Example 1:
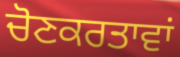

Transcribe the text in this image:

ਚੋਣਕਰਤਾਵਾਂ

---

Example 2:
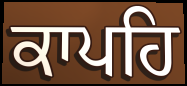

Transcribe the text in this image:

ਕਾਪਹਿ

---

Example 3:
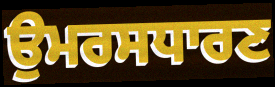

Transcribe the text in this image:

ਉਮਰਸਧਾਰਣ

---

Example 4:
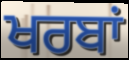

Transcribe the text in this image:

ਖਰਬਾਂ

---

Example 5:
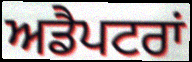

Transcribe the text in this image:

ਅਡੈਪਟਰਾਂ